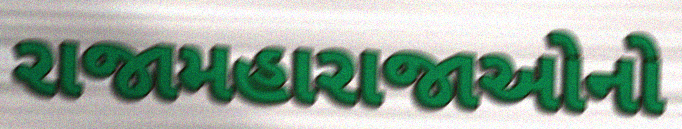
રાજામહારાજાઓનો